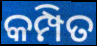
କମ୍ପିତ